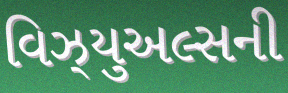
વિઝ્યુઅલ્સની